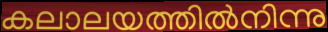
കലാലയത്തിൽനിന്നു